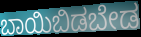
ಬಾಯಿಬಿಡಬೇಡ